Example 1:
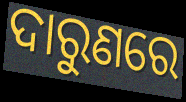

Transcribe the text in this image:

ଦାରୁଣରେ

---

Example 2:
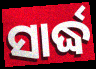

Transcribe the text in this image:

ସାର୍ଦ୍ଧ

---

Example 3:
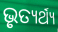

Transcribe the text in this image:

ଭୃତ୍ୟର୍ଥ୍ୟ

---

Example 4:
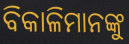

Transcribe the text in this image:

ବିକାଳିମାନଙ୍କୁ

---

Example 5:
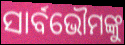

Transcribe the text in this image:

ସାର୍ବଭୌମଙ୍କୁ